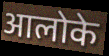
आलोके